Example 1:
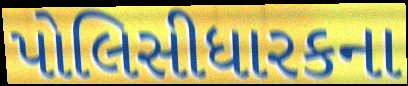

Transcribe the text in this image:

પોલિસીધારકના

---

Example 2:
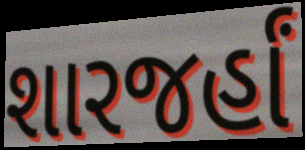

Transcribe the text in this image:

શારજર્હાં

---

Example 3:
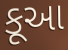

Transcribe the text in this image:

કૂઆ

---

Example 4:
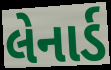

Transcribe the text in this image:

લેનાર્ડ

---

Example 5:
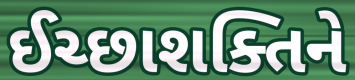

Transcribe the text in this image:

ઈચ્છાશક્તિને